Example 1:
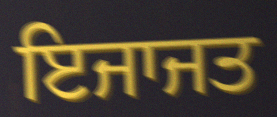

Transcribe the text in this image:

ਇਜਾਜਤ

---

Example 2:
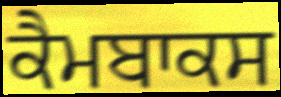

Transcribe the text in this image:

ਕੈਮਬਾਕਸ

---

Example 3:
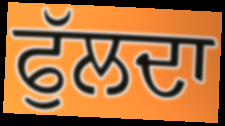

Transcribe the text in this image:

ਫੁੱਲਦਾ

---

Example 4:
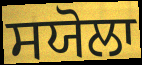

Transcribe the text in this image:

ਸਯੋਲਾ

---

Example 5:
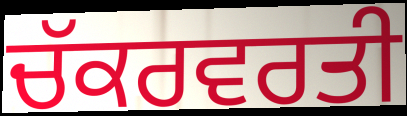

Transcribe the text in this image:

ਚੱਕਰਵਰਤੀ